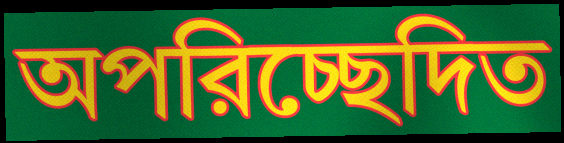
অপরিচ্ছেদিত